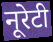
नूरेटी